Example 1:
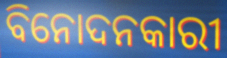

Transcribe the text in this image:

ବିନୋଦନକାରୀ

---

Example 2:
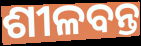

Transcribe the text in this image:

ଶୀଳବନ୍ତ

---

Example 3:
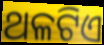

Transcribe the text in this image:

ଥଳଟିଏ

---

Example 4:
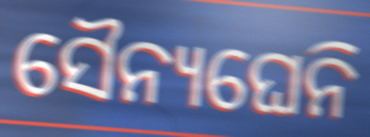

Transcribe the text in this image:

ସୈନ୍ୟଘେନି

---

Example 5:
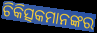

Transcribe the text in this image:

ଚିକିତ୍ସକମାନଙ୍କର